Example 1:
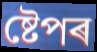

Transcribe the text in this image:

ষ্টেপৰ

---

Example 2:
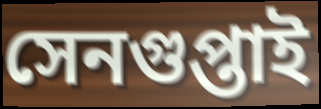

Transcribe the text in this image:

সেনগুপ্তাই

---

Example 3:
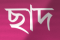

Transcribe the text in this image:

ছাদ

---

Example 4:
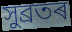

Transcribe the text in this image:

সুব্ৰতৰ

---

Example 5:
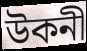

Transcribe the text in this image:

উকনী